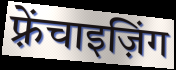
फ़्रेंचाइज़िंग